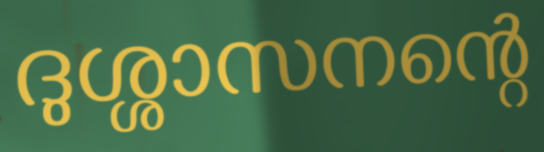
ദുശ്ശാസനന്റെ